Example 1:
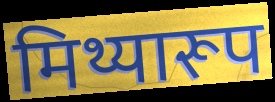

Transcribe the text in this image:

मिथ्यारूप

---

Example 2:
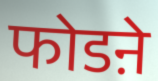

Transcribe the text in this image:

फोडऩे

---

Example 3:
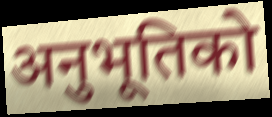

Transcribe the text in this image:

अनुभूतिको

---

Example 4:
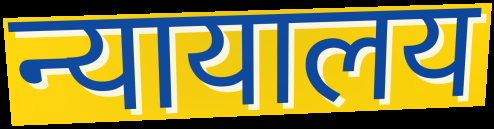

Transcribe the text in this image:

न्‍यायालय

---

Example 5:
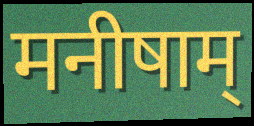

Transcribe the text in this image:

मनीषाम्